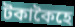
টকাকৈহে